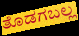
ತೊಡಗಬಲ್ಲ